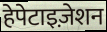
हेपेटाइज़ेशन